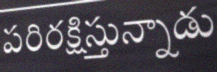
పరిరక్షిస్తున్నాడు